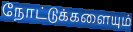
நோட்டுக்களையும்